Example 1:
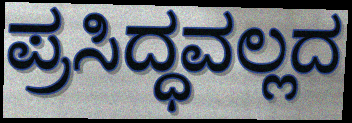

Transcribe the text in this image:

ಪ್ರಸಿದ್ಧವಲ್ಲದ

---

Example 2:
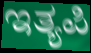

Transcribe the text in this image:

ಇತ್ಯಪಿ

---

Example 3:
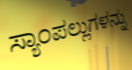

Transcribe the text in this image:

ಸ್ಯಾಂಪಲ್ಲುಗಳನ್ನು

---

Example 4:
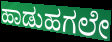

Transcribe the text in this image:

ಹಾಡುಹಗಲೇ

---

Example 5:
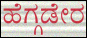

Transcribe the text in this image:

ಹೆಗ್ಗಡೇರ